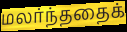
மலர்ந்ததைக்